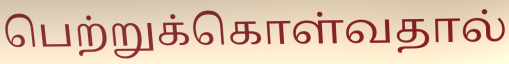
பெற்றுக்கொள்வதால்